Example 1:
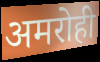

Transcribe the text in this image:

अमरोही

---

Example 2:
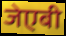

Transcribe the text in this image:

जेएबी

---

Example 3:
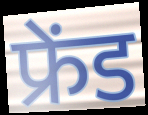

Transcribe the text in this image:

फ्रेंड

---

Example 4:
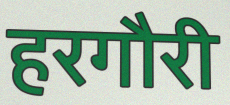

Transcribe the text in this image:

हरगौरी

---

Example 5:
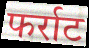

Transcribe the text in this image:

फर्राट